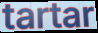
tartar